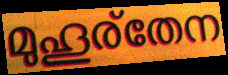
മുഹൂര്തേന